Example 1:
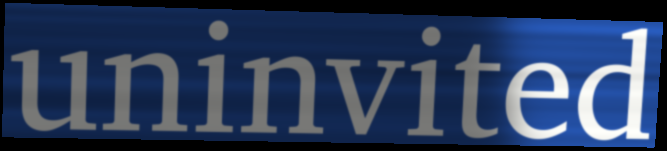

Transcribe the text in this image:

uninvited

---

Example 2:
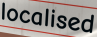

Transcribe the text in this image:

localised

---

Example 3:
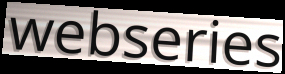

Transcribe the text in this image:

webseries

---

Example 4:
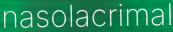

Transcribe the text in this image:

nasolacrimal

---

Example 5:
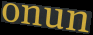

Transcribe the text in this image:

onun